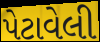
પેટાવેલી